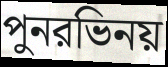
পুনরভিনয়